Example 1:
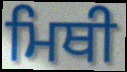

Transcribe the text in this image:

ਮਿਥੀ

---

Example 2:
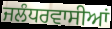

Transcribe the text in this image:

ਜਲੰਧਰਵਾਸੀਆਂ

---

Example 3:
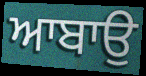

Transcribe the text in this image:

ਆਬਾਉ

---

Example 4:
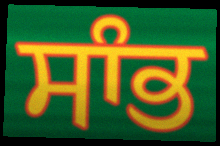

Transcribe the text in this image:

ਸਾੰਭ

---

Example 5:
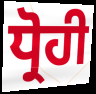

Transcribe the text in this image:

ਧ੍ਰੋਹੀ